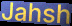
Jahsh